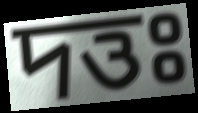
দত্তঃ